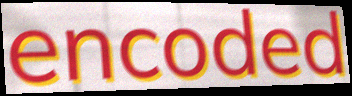
encoded